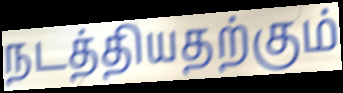
நடத்தியதற்கும்